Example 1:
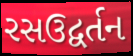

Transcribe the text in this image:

રસઉદ્વર્તન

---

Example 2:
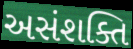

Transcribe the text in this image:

અસંશક્તિ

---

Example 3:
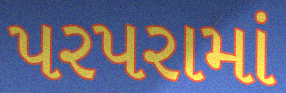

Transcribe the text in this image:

પરપરામાં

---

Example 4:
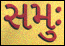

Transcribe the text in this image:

સમુઃ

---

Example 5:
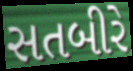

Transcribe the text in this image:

સતબીરે